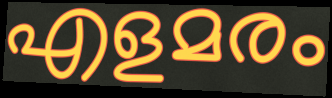
എളമരം